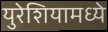
युरेशियामध्ये